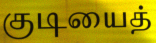
குடியைத்